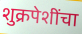
शुक्रपेशींचा